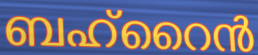
ബഹ്റൈൻ